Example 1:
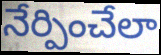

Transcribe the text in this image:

నేర్పించేలా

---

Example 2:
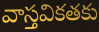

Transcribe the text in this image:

వాస్తవికతకు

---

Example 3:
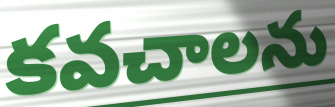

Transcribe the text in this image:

కవచాలను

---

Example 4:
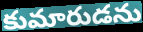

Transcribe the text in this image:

కుమారుడను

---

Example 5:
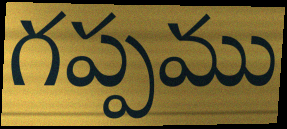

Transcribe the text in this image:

గప్పము